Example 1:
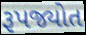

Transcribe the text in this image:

રૂપજ્યોત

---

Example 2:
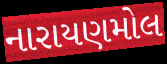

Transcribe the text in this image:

નારાયણમોલ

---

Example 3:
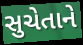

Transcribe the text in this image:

સુચેતાને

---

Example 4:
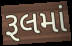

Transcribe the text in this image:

રૂલમાં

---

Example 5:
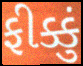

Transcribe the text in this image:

ફીક્કું